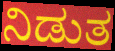
ನಿಡುತ